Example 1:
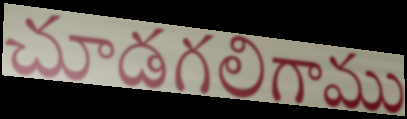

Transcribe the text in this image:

చూడగలిగాము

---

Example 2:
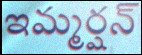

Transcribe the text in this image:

ఇమ్మర్షన్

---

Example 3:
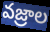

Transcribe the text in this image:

వజ్రాల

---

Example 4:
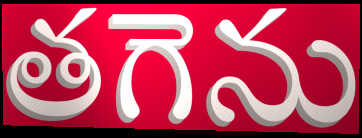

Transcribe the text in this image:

తగెను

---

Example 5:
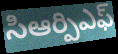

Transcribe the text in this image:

సిఆర్పిఎఫ్